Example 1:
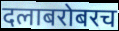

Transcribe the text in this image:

दलाबरोबरच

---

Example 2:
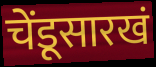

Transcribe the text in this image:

चेंडूसारखं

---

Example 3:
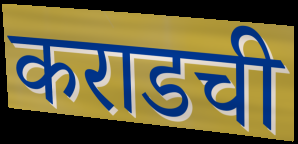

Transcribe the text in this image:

कराडची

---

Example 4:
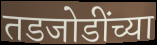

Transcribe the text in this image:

तडजोडींच्या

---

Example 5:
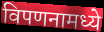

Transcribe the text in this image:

विपणनामध्ये